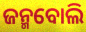
ଜନ୍ମବୋଲି